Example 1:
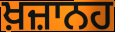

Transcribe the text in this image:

ਖ਼ਜ਼ਾਨਹ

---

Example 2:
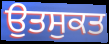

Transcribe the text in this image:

ਉਤਸੁਕਤ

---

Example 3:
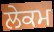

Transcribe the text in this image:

ਲੇਕਮ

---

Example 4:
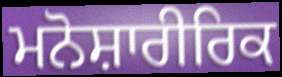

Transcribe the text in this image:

ਮਨੋਸ਼ਾਰੀਰਿਕ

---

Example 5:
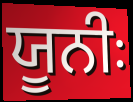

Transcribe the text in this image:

ਯੂਨੀਃ